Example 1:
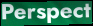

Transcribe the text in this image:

Perspect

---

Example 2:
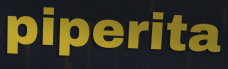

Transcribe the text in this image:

piperita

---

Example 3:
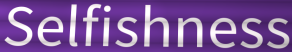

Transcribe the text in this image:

Selfishness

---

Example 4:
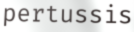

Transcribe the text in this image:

pertussis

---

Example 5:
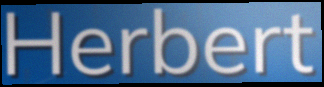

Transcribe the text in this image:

Herbert